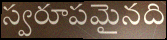
స్వరూపమైనది